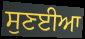
ਸੁਣਈਆ